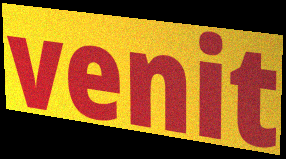
venit